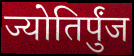
ज्योतिर्पुंज